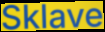
Sklave